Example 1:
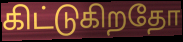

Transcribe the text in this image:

கிட்டுகிறதோ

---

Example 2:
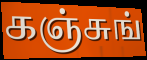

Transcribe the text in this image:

கஞ்சுங்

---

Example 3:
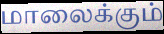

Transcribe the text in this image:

மாலைக்கும்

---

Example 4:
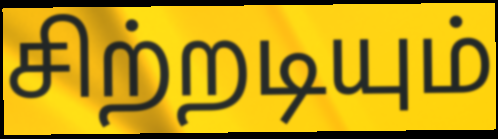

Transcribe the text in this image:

சிற்றடியும்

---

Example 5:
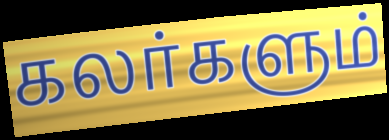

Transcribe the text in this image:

கலர்களும்